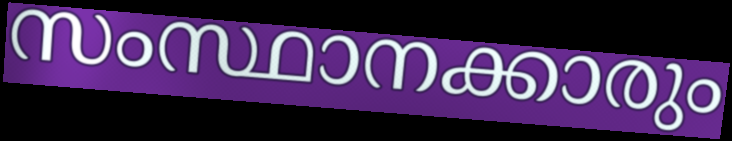
സംസ്ഥാനക്കാരും